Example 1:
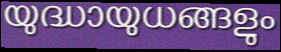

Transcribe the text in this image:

യുദ്ധായുധങ്ങളും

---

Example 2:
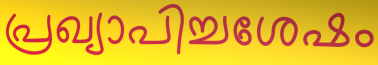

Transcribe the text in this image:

പ്രഖ്യാപിച്ചശേഷം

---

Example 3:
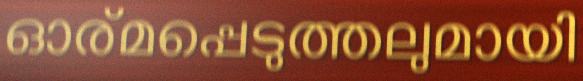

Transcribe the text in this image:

ഓര്മപ്പെടുത്തലുമായി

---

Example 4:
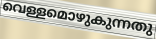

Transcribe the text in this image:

വെള്ളമൊഴുകുന്നതു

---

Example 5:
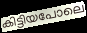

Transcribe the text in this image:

കിട്ടിയപോലെ